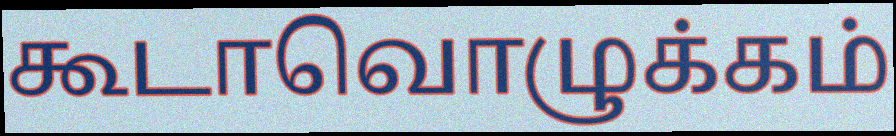
கூடாவொழுக்கம்